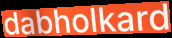
dabholkard